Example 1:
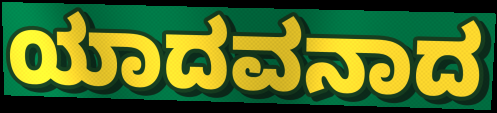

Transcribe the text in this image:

ಯಾದವನಾದ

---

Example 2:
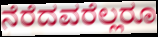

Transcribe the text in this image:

ನೆರೆದವರೆಲ್ಲರೂ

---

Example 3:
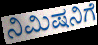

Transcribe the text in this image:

ನಿಮಿಷನಿಗೆ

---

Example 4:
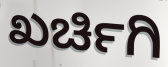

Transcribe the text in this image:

ಖರ್ಚಿಗಿ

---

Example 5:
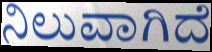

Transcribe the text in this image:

ನಿಲುವಾಗಿದೆ